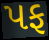
પફ